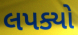
લપક્યો